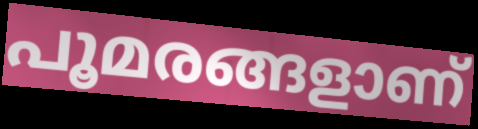
പൂമരങ്ങളാണ്